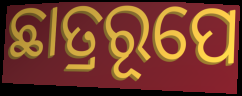
ଛାତ୍ରରୂପେ